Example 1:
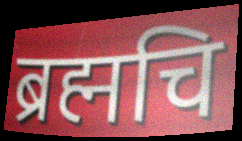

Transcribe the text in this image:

ब्रह्मचि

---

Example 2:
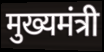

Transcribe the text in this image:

मुख्यमंत्री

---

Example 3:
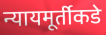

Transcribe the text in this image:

न्यायमूर्तीकडे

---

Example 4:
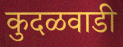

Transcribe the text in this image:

कुदळवाडी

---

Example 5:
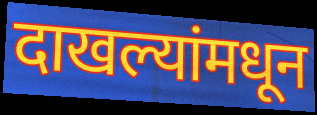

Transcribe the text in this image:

दाखल्यांमधून